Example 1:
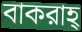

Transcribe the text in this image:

বাকরাহ্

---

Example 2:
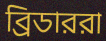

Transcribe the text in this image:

ব্রিডাররা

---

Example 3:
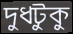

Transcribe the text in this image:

দুধটুকু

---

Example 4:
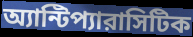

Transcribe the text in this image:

অ্যান্টিপ্যারাসিটিক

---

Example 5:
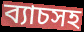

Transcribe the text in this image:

ব্যাচসহ